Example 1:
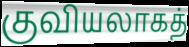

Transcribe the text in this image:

குவியலாகத்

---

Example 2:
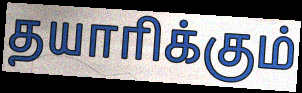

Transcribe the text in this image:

தயாரிக்கும்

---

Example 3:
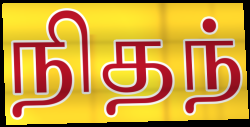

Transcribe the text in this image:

நிதந்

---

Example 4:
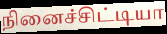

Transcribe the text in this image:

நினைச்சிட்டியா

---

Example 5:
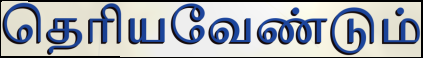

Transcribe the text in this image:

தெரியவேண்டும்